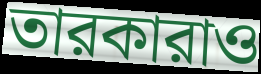
তারকারাও